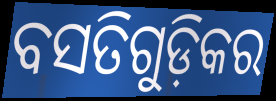
ବସତିଗୁଡ଼ିକର